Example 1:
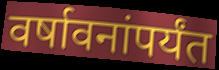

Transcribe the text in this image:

वर्षावनांपर्यंत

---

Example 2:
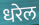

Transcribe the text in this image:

धरेल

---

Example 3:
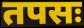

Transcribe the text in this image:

तपसः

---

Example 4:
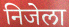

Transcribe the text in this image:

निजेला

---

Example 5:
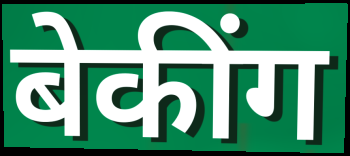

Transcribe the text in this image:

बेकींग